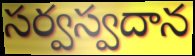
సర్వస్వదాన